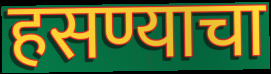
हसण्याचा